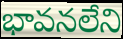
భావనలేని